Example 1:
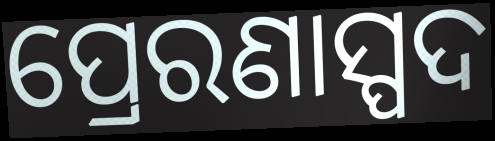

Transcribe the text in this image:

ପ୍ରେରଣାସ୍ପଦ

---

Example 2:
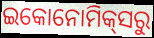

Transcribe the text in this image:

ଇକୋନୋମିକ୍‌ସରୁ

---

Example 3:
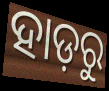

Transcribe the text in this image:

ହାଡ଼ରୁ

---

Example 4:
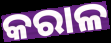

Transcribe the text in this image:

କରାଳ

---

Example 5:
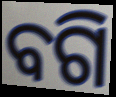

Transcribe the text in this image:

ବଗି